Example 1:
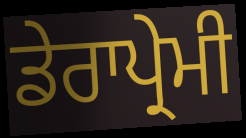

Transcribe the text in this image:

ਡੇਰਾਪ੍ਰੇਮੀ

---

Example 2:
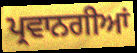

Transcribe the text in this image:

ਪ੍ਰਵਾਨਗੀਆਂ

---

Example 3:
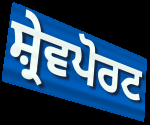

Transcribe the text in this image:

ਸ਼੍ਰੇਵਪੋਰਟ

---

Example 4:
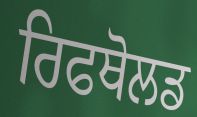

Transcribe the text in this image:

ਰਿਫਥੋਲਡ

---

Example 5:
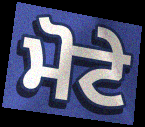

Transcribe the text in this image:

ਮੋਟੇ